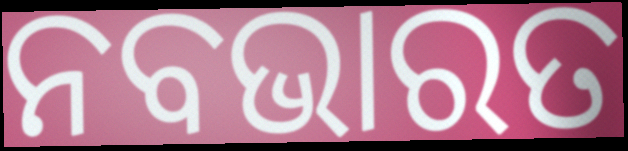
ନବଭାରତ